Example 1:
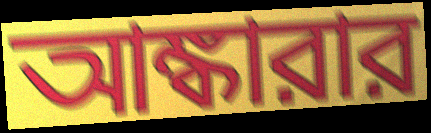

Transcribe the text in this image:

আঙ্কারার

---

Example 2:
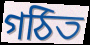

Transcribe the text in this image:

গঠিত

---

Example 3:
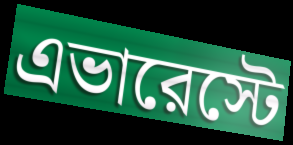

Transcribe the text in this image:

এভারেস্টে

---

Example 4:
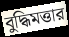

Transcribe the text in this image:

বুদ্ধিমত্তার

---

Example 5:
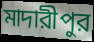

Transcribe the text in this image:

মাদারীপুর